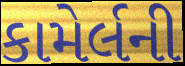
કામેર્લની